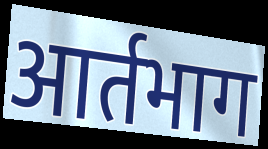
आर्तभाग